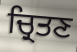
ਚ੍ਰਿਤਣ